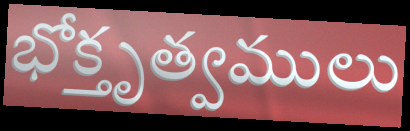
భోక్తృత్వములు